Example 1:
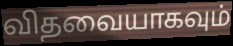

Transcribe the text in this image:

விதவையாகவும்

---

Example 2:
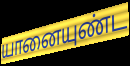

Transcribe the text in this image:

யானையுண்ட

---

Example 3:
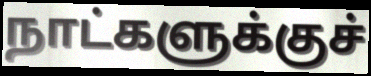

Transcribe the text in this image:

நாட்களுக்குச்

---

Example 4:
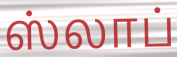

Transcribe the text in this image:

ஸ்லாப்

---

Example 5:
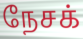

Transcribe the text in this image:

நேசக்